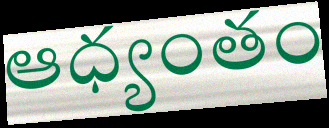
ఆధ్యంతం